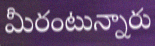
మీరంటున్నారు